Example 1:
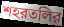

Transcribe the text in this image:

শহরতলির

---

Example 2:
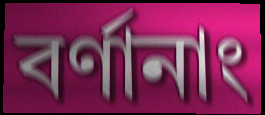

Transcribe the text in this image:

বর্ণানাং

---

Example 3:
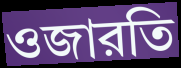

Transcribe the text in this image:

ওজারতি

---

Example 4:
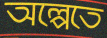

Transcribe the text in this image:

অল্পেতে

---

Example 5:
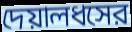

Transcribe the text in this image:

দেয়ালধসের